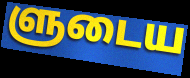
ளுடைய